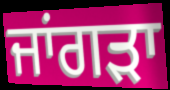
ਜਾਂਗੜਾ